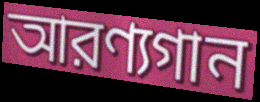
আরণ্যগান